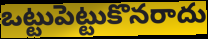
ఒట్టుపెట్టుకొనరాదు